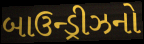
બાઉન્ડ્રીઝનો